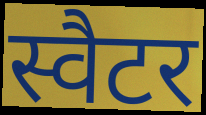
स्वैटर